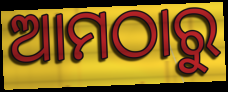
ଆମଠାରୁ